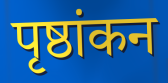
पृष्ठांकन